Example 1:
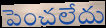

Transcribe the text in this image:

పెంచలేదు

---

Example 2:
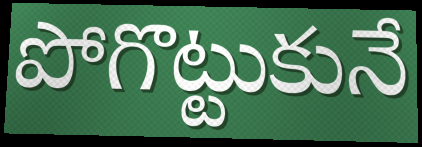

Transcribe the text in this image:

పోగొట్టుకునే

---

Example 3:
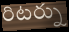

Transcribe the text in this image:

రిటర్ను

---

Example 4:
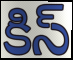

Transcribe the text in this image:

కిస్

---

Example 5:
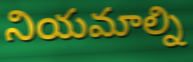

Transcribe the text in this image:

నియమాల్ని